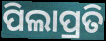
ପିଲାପ୍ରତି